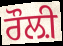
ਰੌਲ਼ੀ